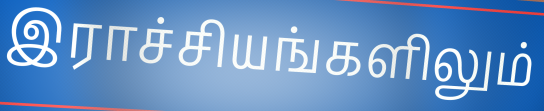
இராச்சியங்களிலும்